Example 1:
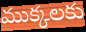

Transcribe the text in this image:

ముక్కలకు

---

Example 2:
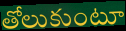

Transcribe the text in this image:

తోలుకుంటూ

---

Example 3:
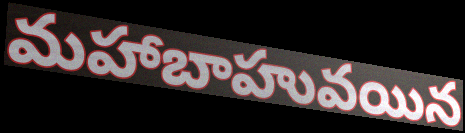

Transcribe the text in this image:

మహాబాహువయిన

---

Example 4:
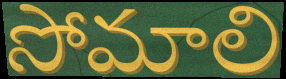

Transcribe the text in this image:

సోమాలి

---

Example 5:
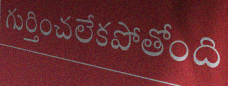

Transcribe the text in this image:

గుర్తించలేకపోతోంది